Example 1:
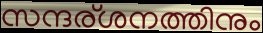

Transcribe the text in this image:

സന്ദര്ശനത്തിനും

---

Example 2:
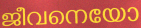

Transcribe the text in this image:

ജീവനെയോ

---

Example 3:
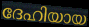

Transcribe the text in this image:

ദേഹിയായ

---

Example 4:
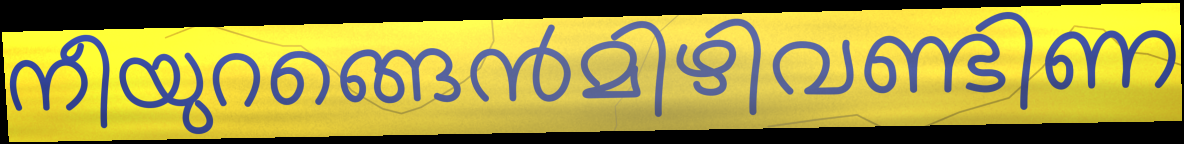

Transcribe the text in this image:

നീയുറങ്ങെൻമിഴിവണ്ടിണ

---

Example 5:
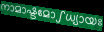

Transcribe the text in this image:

നാമാഷ്ടമോഽധ്യായഃ